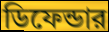
ডিফেন্ডার